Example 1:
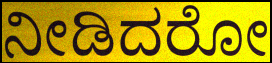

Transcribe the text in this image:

ನೀಡಿದರೋ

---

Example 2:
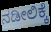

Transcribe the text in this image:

ನಡೀಲಿಕ್ಕೆ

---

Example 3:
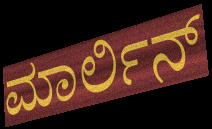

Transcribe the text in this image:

ಮಾರ್ಲಿನ್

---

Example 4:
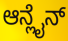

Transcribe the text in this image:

ಆನ್ಲೈನ್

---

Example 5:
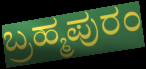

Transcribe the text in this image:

ಬ್ರಹ್ಮಪುರಂ